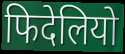
फिदेलियो